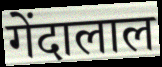
गेंदालाल